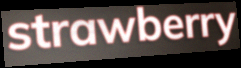
strawberry